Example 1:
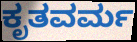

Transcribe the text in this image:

ಕೃತವರ್ಮ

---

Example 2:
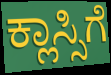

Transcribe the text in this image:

ಕ್ಲಾಸ್ಸಿಗೆ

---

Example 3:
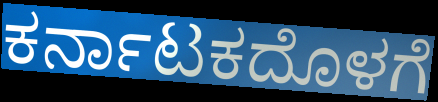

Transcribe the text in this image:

ಕರ್ನಾಟಕದೊಳಗೆ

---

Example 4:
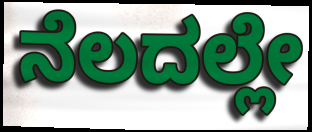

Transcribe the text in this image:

ನೆಲದಲ್ಲೇ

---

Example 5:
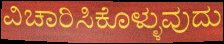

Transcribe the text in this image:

ವಿಚಾರಿಸಿಕೊಳ್ಳುವುದು